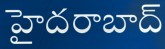
హైదరాబాద్